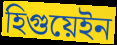
হিগুয়েইন